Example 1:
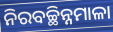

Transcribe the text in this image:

ନିରବଚ୍ଛିନ୍ନମାଳା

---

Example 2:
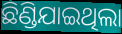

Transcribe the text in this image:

ଛିଣ୍ଡିଯାଇଥିଲା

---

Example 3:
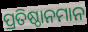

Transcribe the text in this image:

ପ୍ରତିଷ୍ଠାନମାନ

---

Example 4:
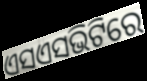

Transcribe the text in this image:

ଏସଏସଭିଟିରେ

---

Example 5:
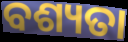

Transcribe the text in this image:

ବଶ୍ୟତା